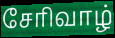
சேரிவாழ்